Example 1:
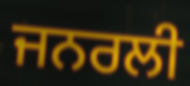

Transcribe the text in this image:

ਜਨਰਲੀ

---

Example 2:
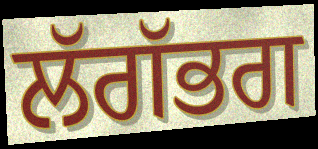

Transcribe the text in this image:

ਲੱਗੱਭਗ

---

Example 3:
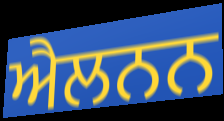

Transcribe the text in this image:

ਐਲਨਨ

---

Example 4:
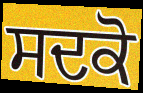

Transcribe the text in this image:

ਸਦਕੋ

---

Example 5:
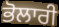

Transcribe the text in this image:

ਭੋਲਾਰੀ